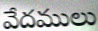
వేదములు